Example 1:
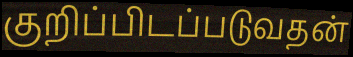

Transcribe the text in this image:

குறிப்பிடப்படுவதன்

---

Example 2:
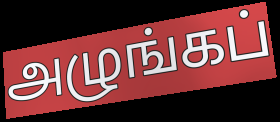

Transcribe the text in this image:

அழுங்கப்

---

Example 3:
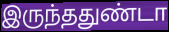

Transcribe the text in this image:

இருந்ததுண்டா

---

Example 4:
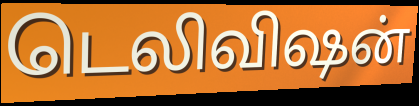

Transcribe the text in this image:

டெலிவிஷன்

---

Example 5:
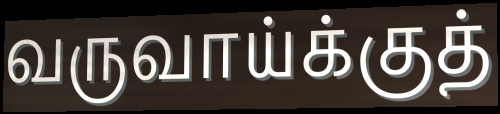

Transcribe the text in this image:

வருவாய்க்குத்